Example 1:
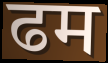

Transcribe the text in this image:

ढम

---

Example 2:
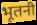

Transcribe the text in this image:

भूतनी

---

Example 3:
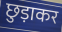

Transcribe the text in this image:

छुड़ाकर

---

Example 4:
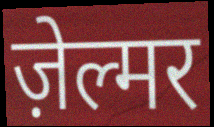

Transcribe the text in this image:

ज़ेल्मर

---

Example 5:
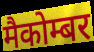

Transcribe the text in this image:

मैकोम्बर